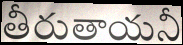
తీరుతాయనీ